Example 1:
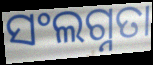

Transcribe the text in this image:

ସଂଲଗ୍ନତା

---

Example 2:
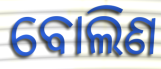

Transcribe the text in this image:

ବୋଲିଣ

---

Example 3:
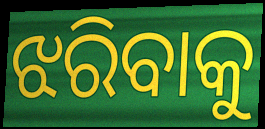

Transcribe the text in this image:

ଝରିବାକୁ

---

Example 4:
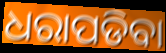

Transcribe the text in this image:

ଧରାପଡିବା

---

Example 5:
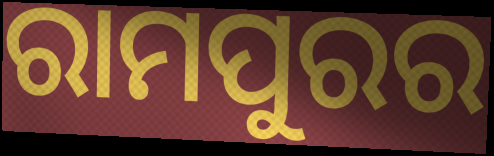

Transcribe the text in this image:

ରାମପୁରର